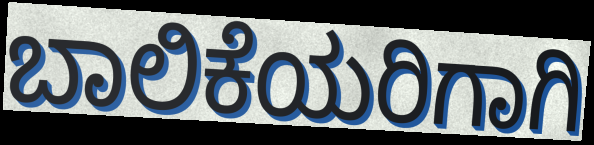
ಬಾಲಿಕೆಯರಿಗಾಗಿ